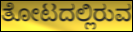
ತೋಟದಲ್ಲಿರುವ